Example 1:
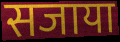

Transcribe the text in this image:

सजाया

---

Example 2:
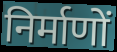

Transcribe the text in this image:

निर्माणों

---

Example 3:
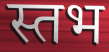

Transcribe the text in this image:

स्तभ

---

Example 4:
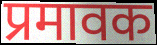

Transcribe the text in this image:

प्रमावक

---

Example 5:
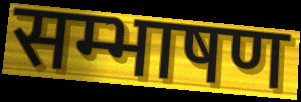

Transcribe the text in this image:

सम्भाषण